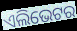
ଏଲିଭେଟର